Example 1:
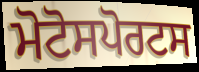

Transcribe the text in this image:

ਮੋਟੋਸਪੋਰਟਸ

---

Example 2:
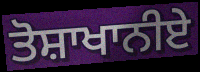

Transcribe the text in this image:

ਤੋਸ਼ਾਖਾਨੀਏ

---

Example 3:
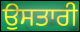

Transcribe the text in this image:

ਉਸਤਾਰੀ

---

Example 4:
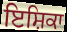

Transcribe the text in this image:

ਇਸ਼ਿਕਾ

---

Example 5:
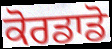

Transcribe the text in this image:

ਕੋਰਡਾਡੋ